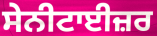
ਸੇਨੀਟਾਈਜ਼ਰ